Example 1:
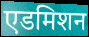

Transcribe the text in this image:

एडमिशन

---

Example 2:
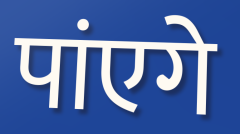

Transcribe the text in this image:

पांएगे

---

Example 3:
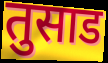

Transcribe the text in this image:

तुसाड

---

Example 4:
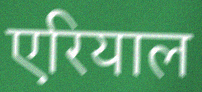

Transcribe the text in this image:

एरियाल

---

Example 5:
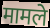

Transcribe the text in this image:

मामले